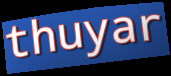
thuyar